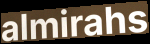
almirahs